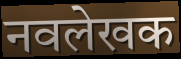
नवलेखक